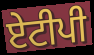
ਏਟੀਪੀ